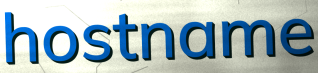
hostname